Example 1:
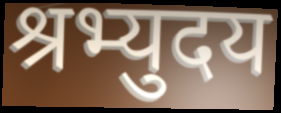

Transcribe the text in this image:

श्रभ्युदय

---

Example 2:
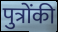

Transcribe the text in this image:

पुत्रोंकी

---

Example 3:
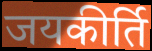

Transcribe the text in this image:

जयकीर्ति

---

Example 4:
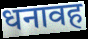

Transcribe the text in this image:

धनावह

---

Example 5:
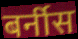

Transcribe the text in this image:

बर्नीस